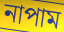
নাপাম